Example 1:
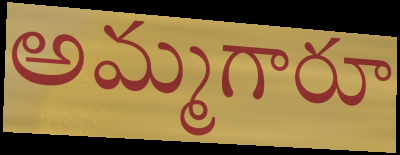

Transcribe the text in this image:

అమ్మగారూ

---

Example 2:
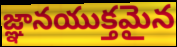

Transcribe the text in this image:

జ్ఞానయుక్తమైన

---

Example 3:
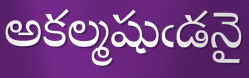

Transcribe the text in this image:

అకల్మషుఁడనై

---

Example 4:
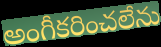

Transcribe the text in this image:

అంగీకరించలేను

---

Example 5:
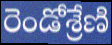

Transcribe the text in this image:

రెండోశ్రేణి